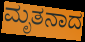
ಮೃತನಾದ